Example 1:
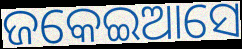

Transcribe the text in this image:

ଜକେଇଆସେ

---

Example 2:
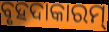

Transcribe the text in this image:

ବୃହଦାକାରମ୍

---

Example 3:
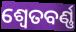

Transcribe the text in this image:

ଶ୍ୱେତବର୍ଣ୍ଣ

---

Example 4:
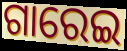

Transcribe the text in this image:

ଗାରେଇ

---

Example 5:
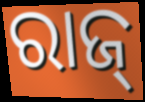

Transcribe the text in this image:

ରାଜ୍